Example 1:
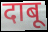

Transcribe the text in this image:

दाबू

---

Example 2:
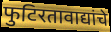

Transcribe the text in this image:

फुटिरतावाद्यांचे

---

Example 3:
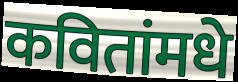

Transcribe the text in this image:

कवितांमधे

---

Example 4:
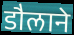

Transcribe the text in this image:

डौलाने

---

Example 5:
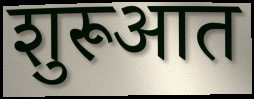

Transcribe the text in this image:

शुरूआत